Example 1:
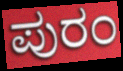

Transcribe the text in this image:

ಪುರಂ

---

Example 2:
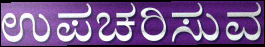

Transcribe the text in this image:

ಉಪಚರಿಸುವ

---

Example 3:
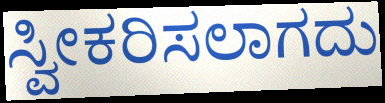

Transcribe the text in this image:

ಸ್ವೀಕರಿಸಲಾಗದು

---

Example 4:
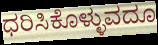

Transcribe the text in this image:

ಧರಿಸಿಕೊಳ್ಳುವದೂ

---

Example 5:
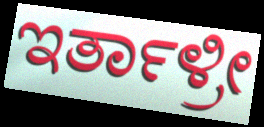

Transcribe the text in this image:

ಇರ್ತಾಳ್ರೀ